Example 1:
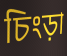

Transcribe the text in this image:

চিংড়া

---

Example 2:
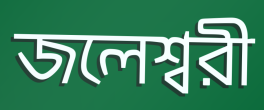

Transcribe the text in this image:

জলেশ্বরী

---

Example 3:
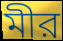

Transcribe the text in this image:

মীর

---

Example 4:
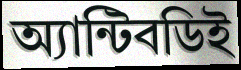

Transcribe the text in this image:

অ্যান্টিবডিই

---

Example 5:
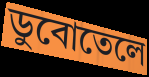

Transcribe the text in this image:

ডুবোতেলে